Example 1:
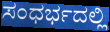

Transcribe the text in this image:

ಸಂಧರ್ಭದಲ್ಲಿ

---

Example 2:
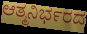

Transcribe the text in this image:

ಆತ್ಮನಿರ್ಭರದ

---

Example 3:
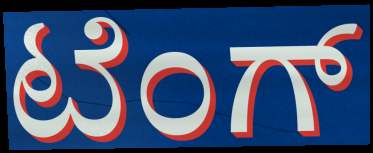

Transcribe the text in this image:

ಟೆಂಗ್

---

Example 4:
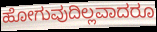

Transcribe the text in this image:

ಹೋಗುವುದಿಲ್ಲವಾದರೂ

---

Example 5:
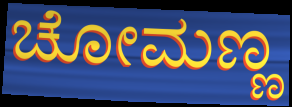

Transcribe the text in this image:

ಚೋಮಣ್ಣ